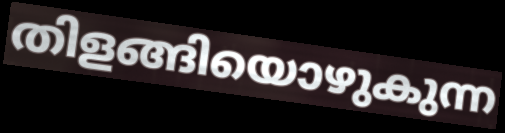
തിളങ്ങിയൊഴുകുന്ന